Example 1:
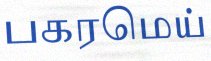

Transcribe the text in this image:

பகரமெய்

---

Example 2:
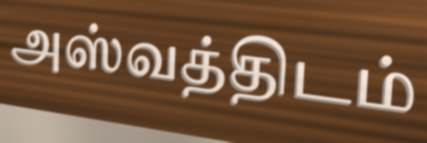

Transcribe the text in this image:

அஸ்வத்திடம்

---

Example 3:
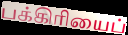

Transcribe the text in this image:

பக்கிரியைப்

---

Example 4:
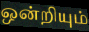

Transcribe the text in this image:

ஒன்றியும்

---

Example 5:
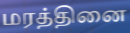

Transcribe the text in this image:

மரத்தினை